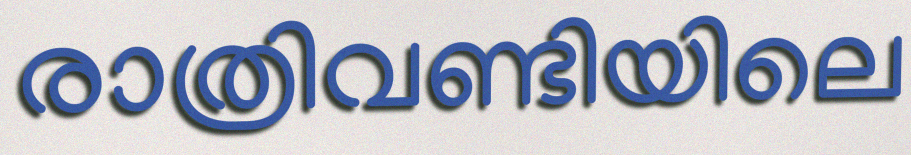
രാത്രിവണ്ടിയിലെ